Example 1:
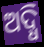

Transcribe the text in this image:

ଅଦ୍ଧି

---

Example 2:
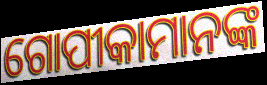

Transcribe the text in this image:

ଗୋପୀକାମାନଙ୍କ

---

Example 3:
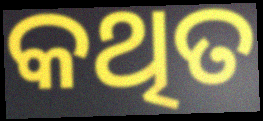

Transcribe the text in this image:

କଥିତ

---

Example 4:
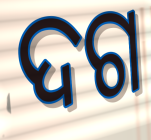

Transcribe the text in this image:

ଦଗ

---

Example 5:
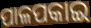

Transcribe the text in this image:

ପାଳପକାଇ